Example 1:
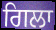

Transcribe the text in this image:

ਗਿਲਾ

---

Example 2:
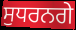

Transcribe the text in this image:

ਸੁਧਰਨਗੇ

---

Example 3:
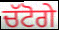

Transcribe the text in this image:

ਚੱਟੋਗੇ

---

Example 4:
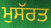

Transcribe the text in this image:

ਮੁਸੱਰਤ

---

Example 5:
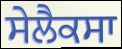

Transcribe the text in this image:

ਸੇਲੈਕਸਾ